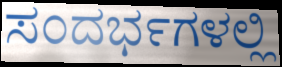
ಸಂದರ್ಭಗಳಲ್ಲಿ